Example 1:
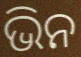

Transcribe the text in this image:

ଭିନ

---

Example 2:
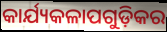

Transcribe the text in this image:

କାର୍ଯ୍ୟକଳାପଗୁଡ଼ିକର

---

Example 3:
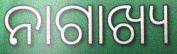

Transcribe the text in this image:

ନାଗାଖ୍ୟ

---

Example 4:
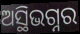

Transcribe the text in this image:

ଅସ୍ଥିଭଗ୍ନର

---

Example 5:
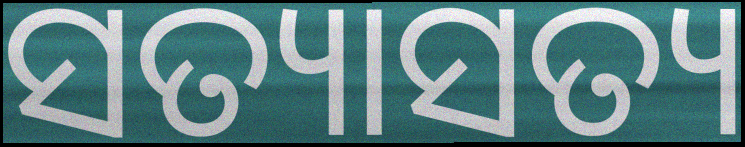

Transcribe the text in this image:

ସତ୍ୟାସତ୍ୟ